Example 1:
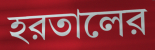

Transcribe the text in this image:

হরতালের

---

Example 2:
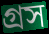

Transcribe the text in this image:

গ্রস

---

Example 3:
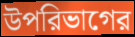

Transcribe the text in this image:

উপরিভাগের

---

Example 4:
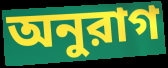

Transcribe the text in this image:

অনুরাগ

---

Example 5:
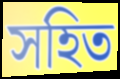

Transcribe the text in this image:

সহিত